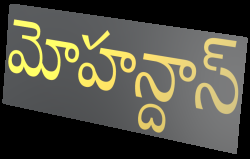
మోహన్దాస్